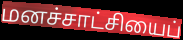
மனச்சாட்சியைப்